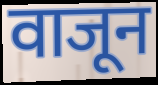
वाजून